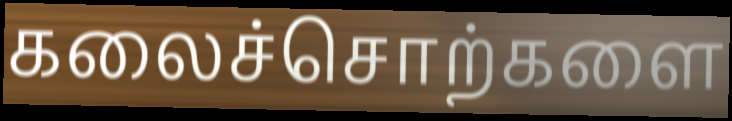
கலைச்சொற்களை